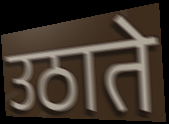
उठाते